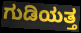
ಗುಡಿಯತ್ತ